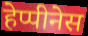
हेप्पीनेस